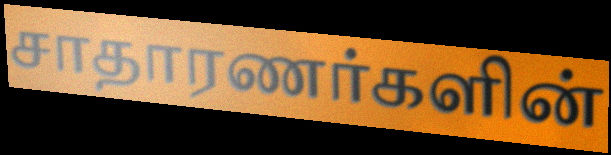
சாதாரணர்களின்